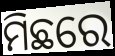
ମିଛରେ